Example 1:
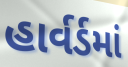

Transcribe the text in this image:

હાર્વર્ડમાં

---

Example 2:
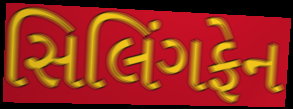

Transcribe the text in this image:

સિલિંગફેન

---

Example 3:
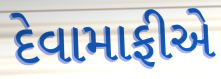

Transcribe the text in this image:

દેવામાફીએ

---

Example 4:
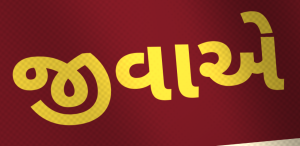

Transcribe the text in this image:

જીવાએ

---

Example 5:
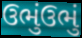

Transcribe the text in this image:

ઉભુંઉભું